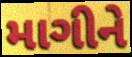
માગીને